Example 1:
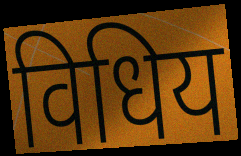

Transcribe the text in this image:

विधिय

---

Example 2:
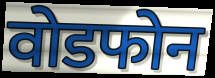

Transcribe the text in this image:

वोडफोन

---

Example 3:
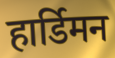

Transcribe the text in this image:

हार्डिमन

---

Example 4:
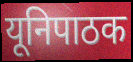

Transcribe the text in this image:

यूनिपाठक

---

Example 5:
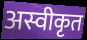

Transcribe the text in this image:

अस्‍वीकृत